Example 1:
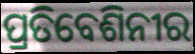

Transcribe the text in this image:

ପ୍ରତିବେଶିନୀର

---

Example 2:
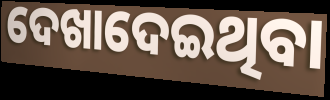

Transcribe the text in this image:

ଦେଖାଦେଇଥିବା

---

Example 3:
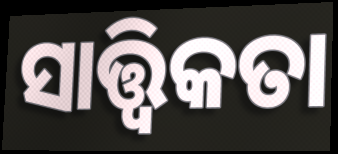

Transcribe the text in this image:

ସାତ୍ତ୍ବିକତା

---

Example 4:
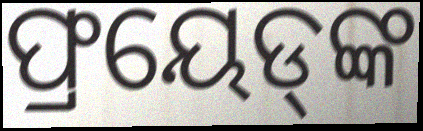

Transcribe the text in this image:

ଫ୍ରୟେଡ୍‍ଙ୍କ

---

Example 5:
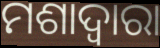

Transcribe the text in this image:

ମଶାଦ୍ୱାରା